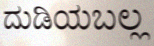
ದುಡಿಯಬಲ್ಲ